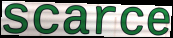
scarce